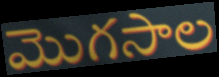
మొగసాల